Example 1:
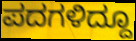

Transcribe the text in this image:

ಪದಗಳಿದ್ದೂ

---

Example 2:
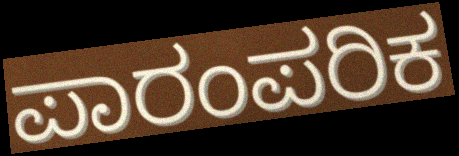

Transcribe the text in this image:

ಪಾರಂಪರಿಕ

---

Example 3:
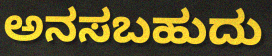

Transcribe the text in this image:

ಅನಸಬಹುದು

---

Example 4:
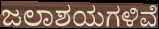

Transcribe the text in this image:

ಜಲಾಶಯಗಳಿವೆ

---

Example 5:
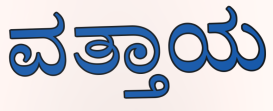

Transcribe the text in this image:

ವತ್ತಾಯ